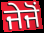
ਜੇਜੋਂ